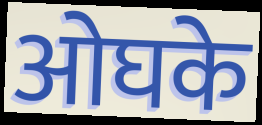
ओघके